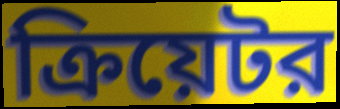
ক্রিয়েটর